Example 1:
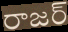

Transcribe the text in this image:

రాజర్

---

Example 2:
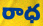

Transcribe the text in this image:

రాధ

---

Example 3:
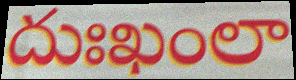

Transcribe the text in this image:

దుఃఖంలా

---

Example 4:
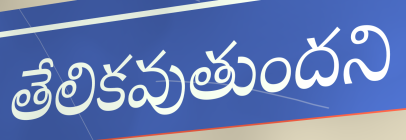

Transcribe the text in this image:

తేలికవుతుందని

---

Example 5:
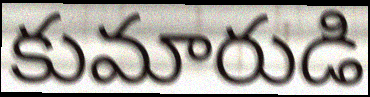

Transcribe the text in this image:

కుమారుడి